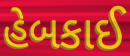
હેબકાઈ